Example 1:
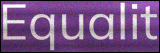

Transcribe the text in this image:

Equalit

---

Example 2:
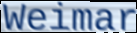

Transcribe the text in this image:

Weimar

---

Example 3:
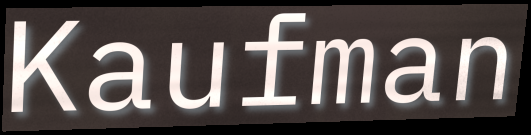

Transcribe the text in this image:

Kaufman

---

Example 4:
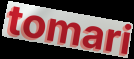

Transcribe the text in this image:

tomari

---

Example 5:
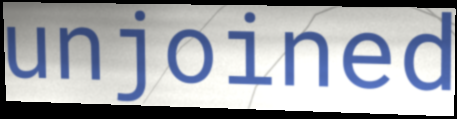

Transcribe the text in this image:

unjoined